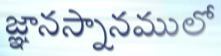
జ్ఞానస్నానములో